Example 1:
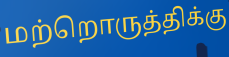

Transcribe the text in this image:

மற்றொருத்திக்கு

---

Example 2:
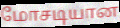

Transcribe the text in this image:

மோசடியான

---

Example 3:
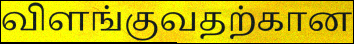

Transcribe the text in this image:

விளங்குவதற்கான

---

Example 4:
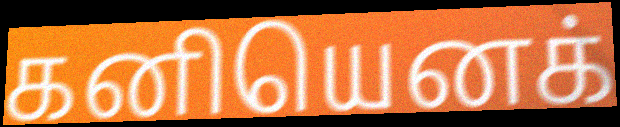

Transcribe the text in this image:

கனியெனக்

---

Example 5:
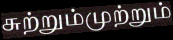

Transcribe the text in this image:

சுற்றும்முற்றும்